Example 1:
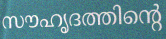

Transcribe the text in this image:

സൗഹൃദത്തിന്റെ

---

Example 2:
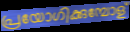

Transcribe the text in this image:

പ്രയോഗിക്കുമ്പോള്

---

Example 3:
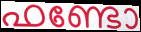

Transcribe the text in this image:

ഫണ്ടോ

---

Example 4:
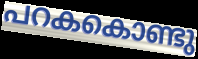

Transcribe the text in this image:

പറകകൊണ്ടു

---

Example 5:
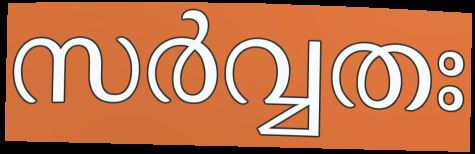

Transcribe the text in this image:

സർവ്വതഃ